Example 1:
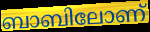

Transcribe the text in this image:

ബാബിലോണ്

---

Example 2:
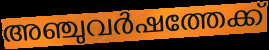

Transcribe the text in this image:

അഞ്ചുവർഷത്തേക്ക്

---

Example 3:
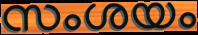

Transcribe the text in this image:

സംശയം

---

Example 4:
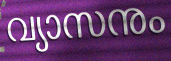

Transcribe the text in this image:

വ്യാസനും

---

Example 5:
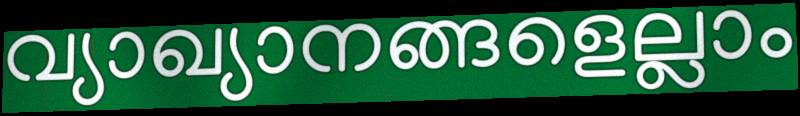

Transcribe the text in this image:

വ്യാഖ്യാനങ്ങളെല്ലാം